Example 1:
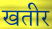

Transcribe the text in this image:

खतीर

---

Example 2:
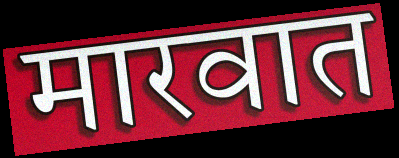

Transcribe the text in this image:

मारवात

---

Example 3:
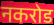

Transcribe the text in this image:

नकरोड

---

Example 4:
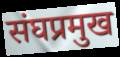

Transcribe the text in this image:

संघप्रमुख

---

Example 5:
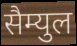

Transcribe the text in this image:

सैम्युल